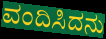
ವಂದಿಸಿದನು